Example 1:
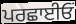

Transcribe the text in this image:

ਪਰਛਾਈਓਂ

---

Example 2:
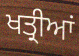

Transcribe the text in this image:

ਖਤ੍ਰੀਆਂ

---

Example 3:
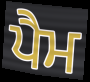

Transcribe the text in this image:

ਪੈਮ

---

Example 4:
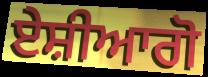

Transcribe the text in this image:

ਏਸ਼ੀਆਗੋ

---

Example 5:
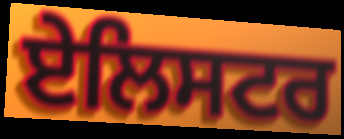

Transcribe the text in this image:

ਏਲਿਸਟਰ